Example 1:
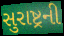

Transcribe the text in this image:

સુરાષ્ટ્રની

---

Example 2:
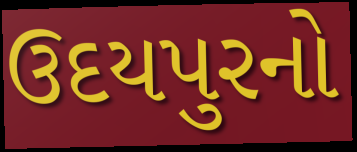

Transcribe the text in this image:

ઉદયપુરનો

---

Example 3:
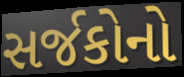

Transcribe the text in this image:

સર્જકોનો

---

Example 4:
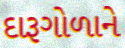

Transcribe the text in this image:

દારૂગોળાને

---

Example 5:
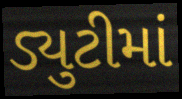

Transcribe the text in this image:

ડ્યુટીમાં